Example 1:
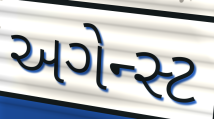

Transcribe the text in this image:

અગેન્સ્ટ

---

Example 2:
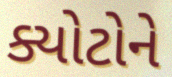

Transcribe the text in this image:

ક્યોટોને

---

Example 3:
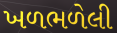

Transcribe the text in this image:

ખળભળેલી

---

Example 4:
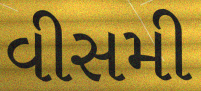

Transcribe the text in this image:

વીસમી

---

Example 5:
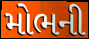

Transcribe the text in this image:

મોભની